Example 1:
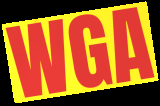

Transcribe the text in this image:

WGA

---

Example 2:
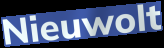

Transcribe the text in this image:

Nieuwolt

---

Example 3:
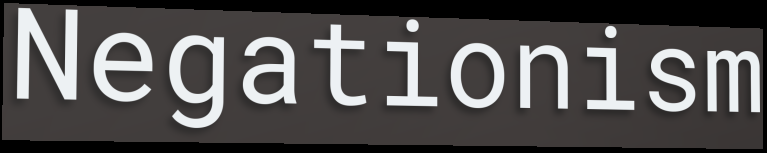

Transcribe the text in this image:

Negationism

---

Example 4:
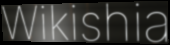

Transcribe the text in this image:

Wikishia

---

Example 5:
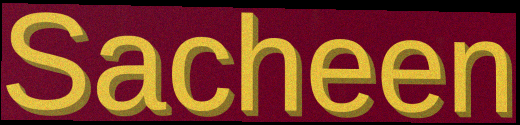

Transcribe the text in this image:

Sacheen